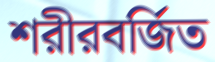
শরীরবর্জিত